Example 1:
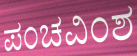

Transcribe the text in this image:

ಪಂಚವಿಂಶ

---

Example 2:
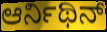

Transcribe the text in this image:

ಆರ್ನಿಥಿನ್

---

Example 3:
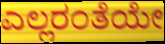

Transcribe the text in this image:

ಎಲ್ಲರಂತೆಯೇ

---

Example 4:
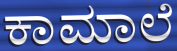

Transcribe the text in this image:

ಕಾಮಾಲೆ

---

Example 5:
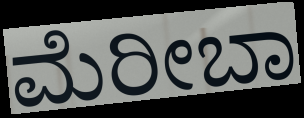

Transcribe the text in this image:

ಮೆರೀಬಾ